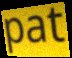
pat